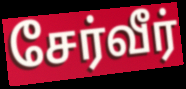
சேர்வீர்